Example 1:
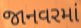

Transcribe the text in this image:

જાનવરમાં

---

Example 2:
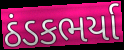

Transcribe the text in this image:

ઠંડકભર્યા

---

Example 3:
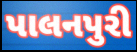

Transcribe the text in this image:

પાલનપુરી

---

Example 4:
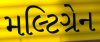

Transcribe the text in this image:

મલ્ટિગ્રેન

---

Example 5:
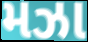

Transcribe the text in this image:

મઝા